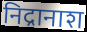
निद्रानाश